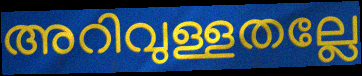
അറിവുള്ളതല്ലേ